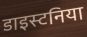
डाइस्टनिया